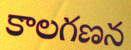
కాలగణన